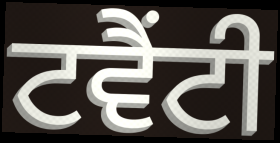
ਟਵੈਂਟੀ